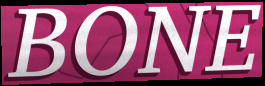
BONE